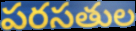
పరసతుల